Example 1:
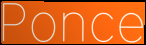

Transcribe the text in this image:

Ponce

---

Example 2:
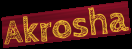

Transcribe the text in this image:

Akrosha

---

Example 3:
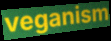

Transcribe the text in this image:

veganism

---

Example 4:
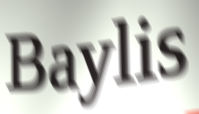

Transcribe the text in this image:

Baylis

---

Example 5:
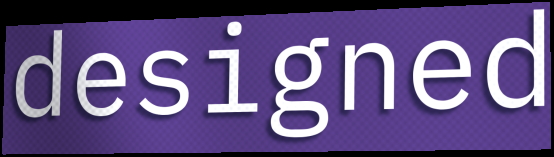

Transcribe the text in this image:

designed